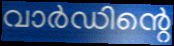
വാർഡിന്റെ